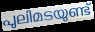
പുലിമടയുണ്ട്